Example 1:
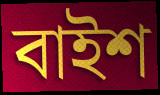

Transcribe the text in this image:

বাইশ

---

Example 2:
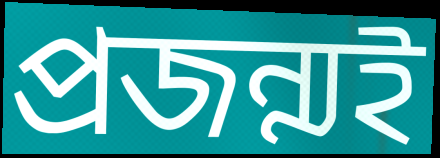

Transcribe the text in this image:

প্ৰজন্মই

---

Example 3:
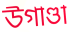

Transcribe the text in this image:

উগাণ্ডা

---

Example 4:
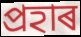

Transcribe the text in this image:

প্ৰহাৰ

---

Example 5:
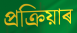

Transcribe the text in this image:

প্ৰক্ৰিয়াৰ